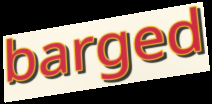
barged